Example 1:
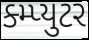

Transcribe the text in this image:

ક્મ્પ્યુટર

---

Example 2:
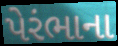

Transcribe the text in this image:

પેરંભાના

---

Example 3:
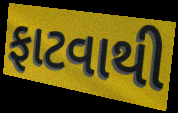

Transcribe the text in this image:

ફાટવાથી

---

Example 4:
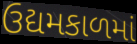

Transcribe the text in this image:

ઉદ્યમકાળમાં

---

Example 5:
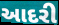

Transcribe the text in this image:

આદરી